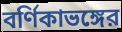
বর্ণিকাভঙ্গের